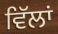
ਵਿੱਲਾਂ